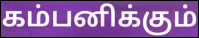
கம்பனிக்கும்